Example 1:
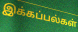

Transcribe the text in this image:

இக்கப்பல்கள்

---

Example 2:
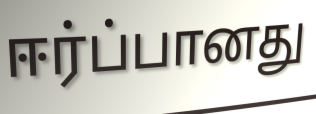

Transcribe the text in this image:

ஈர்ப்பானது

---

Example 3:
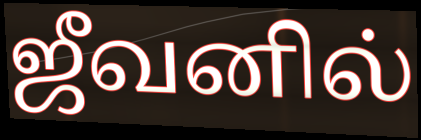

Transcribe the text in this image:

ஜீவனில்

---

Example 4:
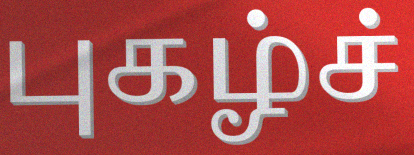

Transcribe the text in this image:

புகழ்ச்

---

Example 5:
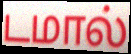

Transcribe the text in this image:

டமால்